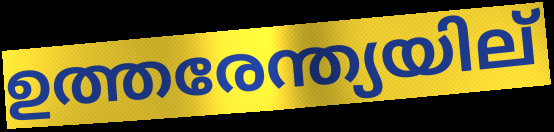
ഉത്തരേന്ത്യയില്